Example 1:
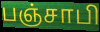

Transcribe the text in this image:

பஞ்சாபி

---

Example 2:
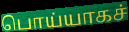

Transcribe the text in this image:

பொய்யாகச்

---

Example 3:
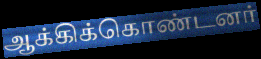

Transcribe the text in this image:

ஆக்கிக்கொண்டனர்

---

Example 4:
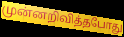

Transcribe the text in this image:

முன்னறிவித்தபோது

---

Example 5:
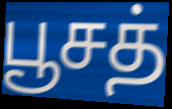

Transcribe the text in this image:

பூசத்